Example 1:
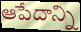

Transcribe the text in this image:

ఆపేదాన్ని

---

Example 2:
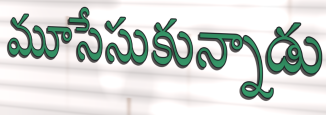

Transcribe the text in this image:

మూసేసుకున్నాడు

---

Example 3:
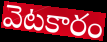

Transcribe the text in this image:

వెటకారం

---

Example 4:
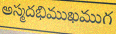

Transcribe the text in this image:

అస్మదభిముఖముగ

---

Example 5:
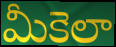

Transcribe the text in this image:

మీకెలా